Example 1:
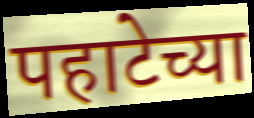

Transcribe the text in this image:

पहाटेच्या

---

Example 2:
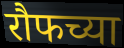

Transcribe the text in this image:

रौफच्या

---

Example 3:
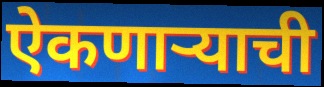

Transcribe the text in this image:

ऐकणार्‍याची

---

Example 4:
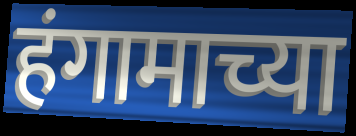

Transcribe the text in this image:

हंगामाच्या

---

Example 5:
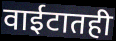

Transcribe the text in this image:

वाईटातही